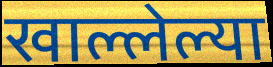
खाल्लेल्या